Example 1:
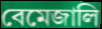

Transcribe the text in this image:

বেমেজালি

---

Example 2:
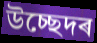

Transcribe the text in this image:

উচ্ছেদৰ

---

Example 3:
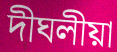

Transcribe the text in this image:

দীঘলীয়া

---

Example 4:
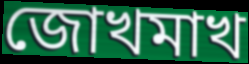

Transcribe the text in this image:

জোখমাখ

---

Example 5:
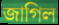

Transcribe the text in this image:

জাগিল